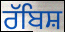
ਰੱਬਿਸ਼